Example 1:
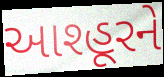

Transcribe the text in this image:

આશ્હૂરને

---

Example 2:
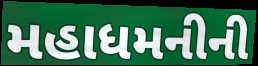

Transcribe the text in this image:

મહાધમનીની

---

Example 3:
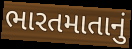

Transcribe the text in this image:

ભારતમાતાનું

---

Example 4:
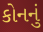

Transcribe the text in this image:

કોનનું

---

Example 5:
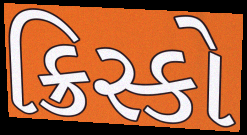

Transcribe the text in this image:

ક્રિસ્કો